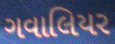
ગવાલિયર